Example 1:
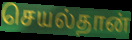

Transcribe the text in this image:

செயல்தான்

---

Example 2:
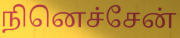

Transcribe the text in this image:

நினெச்சேன்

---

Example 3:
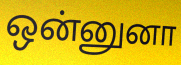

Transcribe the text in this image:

ஒன்னுனா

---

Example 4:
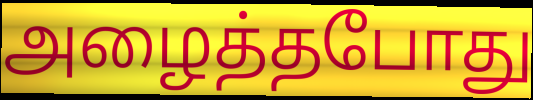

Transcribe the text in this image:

அழைத்தபோது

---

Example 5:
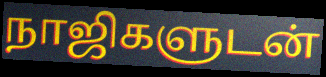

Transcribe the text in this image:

நாஜிகளுடன்